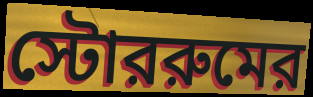
স্টোররুমের